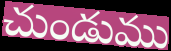
చుండుము